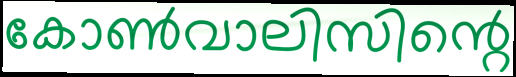
കോൺവാലിസിന്റെ